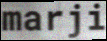
marji